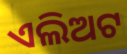
ଏଲିଅଟ